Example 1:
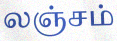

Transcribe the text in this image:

லஞ்சம்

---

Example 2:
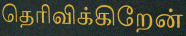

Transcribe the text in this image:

தெரிவிக்கிறேன்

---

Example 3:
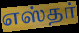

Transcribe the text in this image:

எஸ்தர்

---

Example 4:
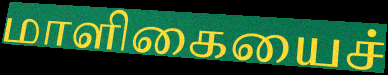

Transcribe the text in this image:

மாளிகையைச்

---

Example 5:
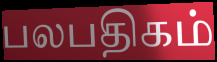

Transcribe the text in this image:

பலபதிகம்